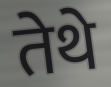
तेथे